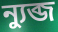
ন্যুব্জ